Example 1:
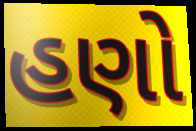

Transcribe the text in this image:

હણો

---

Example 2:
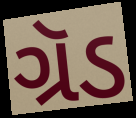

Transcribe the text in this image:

ગ્રૅડ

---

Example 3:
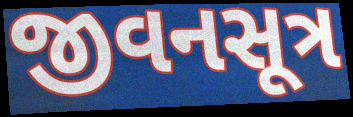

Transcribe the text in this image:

જીવનસૂત્ર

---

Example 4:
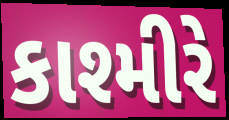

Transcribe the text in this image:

કાશ્મીરે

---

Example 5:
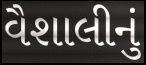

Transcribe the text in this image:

વૈશાલીનું